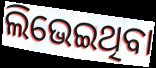
ଲିଭେଇଥିବା